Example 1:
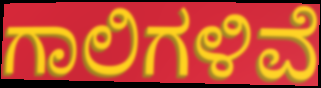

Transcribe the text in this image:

ಗಾಲಿಗಳಿವೆ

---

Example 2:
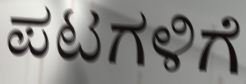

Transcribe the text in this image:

ಪಟಗಳಿಗೆ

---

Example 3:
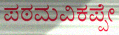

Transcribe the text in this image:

ಪಠಮವಿಕಪ್ಪೇ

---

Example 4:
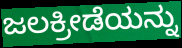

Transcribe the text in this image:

ಜಲಕ್ರೀಡೆಯನ್ನು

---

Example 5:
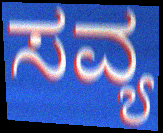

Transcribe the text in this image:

ಸವ್ಯ